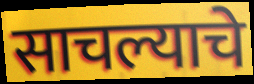
साचल्याचे